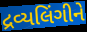
દ્રવ્યલિંગીને